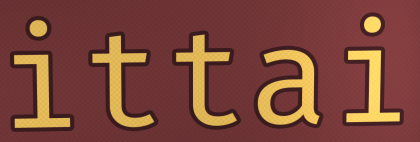
ittai